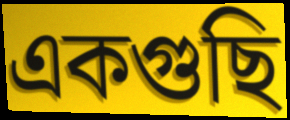
একগুছি